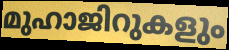
മുഹാജിറുകളും